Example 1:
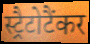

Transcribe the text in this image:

स्ट्रैटोटैंकर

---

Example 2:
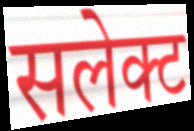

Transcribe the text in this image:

सलेक्ट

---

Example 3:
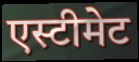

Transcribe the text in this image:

एस्‍टीमेट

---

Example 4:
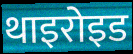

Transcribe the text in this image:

थाइरोइड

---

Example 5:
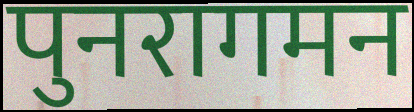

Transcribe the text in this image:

पुनरागमन